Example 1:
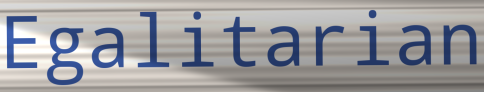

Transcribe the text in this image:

Egalitarian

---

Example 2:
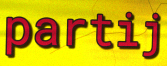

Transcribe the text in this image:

partij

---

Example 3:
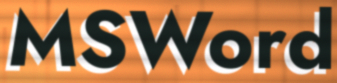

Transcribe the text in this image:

MSWord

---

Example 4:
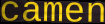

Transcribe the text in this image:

camen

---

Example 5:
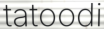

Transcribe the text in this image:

tatoodi